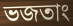
ভজতাং